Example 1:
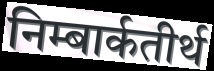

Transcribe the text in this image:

निम्बार्कतीर्थ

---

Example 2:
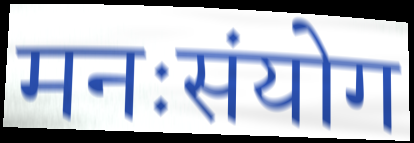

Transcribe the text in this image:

मनःसंयोग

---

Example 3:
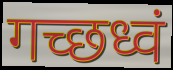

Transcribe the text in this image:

गच्छध्वं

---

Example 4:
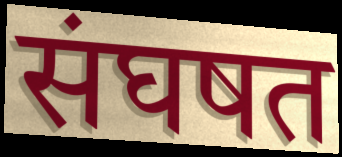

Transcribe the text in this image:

संघषत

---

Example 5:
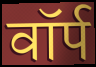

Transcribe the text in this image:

वॉर्प